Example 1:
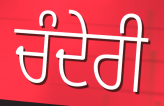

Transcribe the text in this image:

ਚੰਦੇਰੀ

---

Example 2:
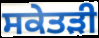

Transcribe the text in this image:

ਸਕੇਤੜੀ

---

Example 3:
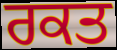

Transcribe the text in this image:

ਰਕਤ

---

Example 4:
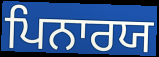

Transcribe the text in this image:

ਪਿਨਾਰਯ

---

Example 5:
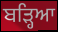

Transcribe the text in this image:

ਬੜ੍ਹਿਆ